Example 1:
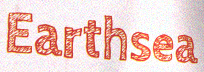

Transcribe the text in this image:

Earthsea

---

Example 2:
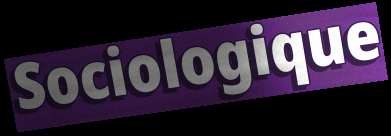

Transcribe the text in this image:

Sociologique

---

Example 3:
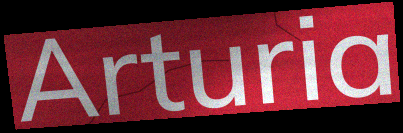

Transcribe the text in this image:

Arturia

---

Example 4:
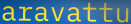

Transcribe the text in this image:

aravattu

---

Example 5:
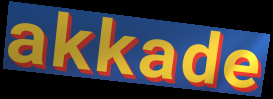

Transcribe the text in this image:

akkade